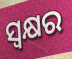
ସ୍ୱକ୍ଷର